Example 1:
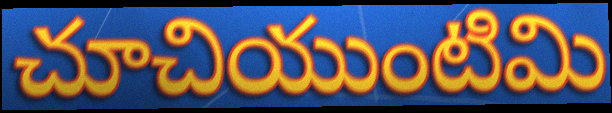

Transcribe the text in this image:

చూచియుంటిమి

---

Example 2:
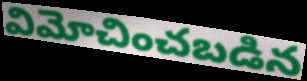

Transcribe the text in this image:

విమోచించబడిన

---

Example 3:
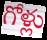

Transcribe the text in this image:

గోళ్లు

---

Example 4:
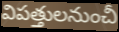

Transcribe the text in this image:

విపత్తులనుంచీ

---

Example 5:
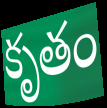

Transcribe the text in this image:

కృతం